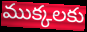
ముక్కలకు